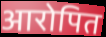
आरोपित